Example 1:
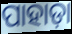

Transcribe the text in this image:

ପାହାଡ଼ା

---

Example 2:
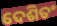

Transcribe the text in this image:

ଦେଶିତଂ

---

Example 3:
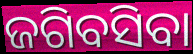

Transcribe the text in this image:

ଜଗିବସିବା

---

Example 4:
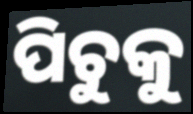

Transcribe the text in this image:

ପିଚୁକୁ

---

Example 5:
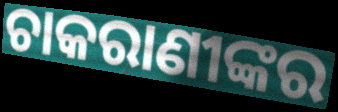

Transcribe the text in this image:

ଚାକରାଣୀଙ୍କର